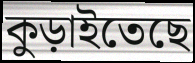
কুড়াইতেছে